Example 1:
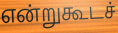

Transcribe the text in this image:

என்றுகூடச்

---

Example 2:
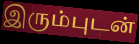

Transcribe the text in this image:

இரும்புடன்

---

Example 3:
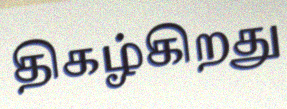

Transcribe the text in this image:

திகழ்கிறது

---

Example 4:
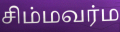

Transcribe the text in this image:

சிம்மவர்ம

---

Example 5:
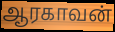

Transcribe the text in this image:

ஆரகாவன்